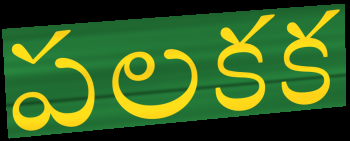
పలకక